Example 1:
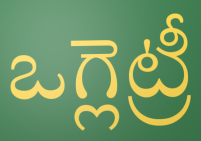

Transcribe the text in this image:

ఒగ్లెట్రీ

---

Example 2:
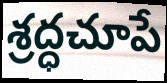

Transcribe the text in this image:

శ్రద్ధచూపే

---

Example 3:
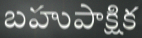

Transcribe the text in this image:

బహుపాక్షిక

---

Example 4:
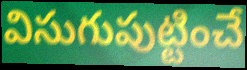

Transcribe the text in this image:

విసుగుపుట్టించే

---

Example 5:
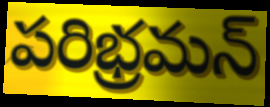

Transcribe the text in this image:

పరిభ్రమన్